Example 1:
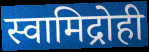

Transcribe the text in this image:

स्वामिद्रोही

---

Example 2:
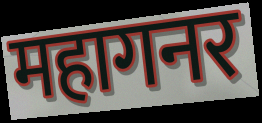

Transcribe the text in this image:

महागनर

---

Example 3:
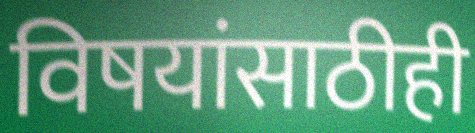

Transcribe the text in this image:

विषयांसाठीही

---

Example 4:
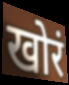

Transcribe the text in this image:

खोरं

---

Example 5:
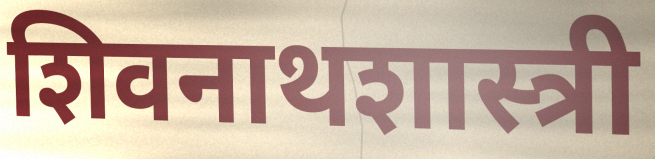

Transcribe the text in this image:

शिवनाथशास्त्री